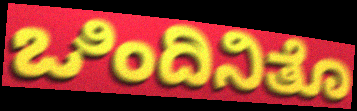
ಒಿಂದಿನಿತೊ